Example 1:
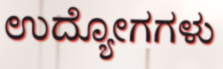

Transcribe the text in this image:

ಉದ್ಯೋಗಗಳು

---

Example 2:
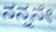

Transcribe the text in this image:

ನನ್ನನೇ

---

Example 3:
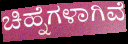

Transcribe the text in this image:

ಚಿಹ್ನೆಗಳಾಗಿವೆ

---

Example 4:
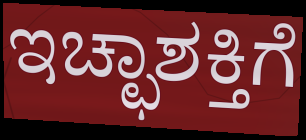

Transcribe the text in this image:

ಇಚ್ಛಾಶಕ್ತಿಗೆ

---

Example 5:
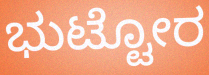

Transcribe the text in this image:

ಭುಟ್ಟೋರ